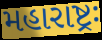
મહારાષ્ટ્રઃ